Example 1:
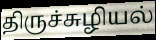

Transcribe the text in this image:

திருச்சுழியல்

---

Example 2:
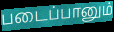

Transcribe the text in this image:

படைப்பானும்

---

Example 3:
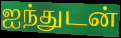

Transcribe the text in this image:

ஐந்துடன்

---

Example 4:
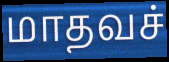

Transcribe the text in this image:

மாதவச்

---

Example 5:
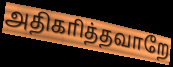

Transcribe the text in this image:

அதிகரித்தவாறே